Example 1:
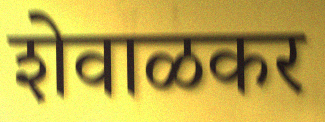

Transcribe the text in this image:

शेवाळकर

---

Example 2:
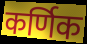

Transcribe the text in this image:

कर्णिक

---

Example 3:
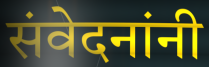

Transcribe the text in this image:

संवेदनांनी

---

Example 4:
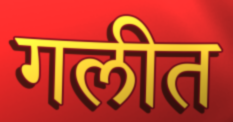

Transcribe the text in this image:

गलीत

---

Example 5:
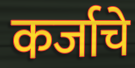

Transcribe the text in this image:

कर्जाचे